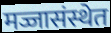
मज्जासंस्थेत